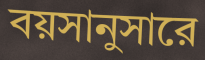
বয়সানুসারে